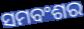
ସମବଂଶର